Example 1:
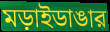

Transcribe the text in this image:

মড়াইডাঙার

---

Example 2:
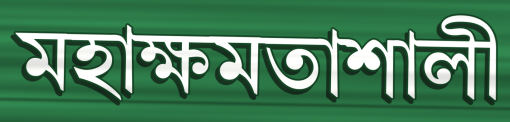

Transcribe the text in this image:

মহাক্ষমতাশালী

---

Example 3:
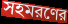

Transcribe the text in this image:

সহমরণের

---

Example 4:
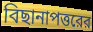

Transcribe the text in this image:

বিছানাপত্তরের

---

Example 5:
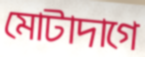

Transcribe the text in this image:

মোটাদাগে